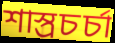
শাস্ত্রচর্চা